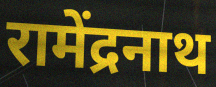
रामेंद्रनाथ